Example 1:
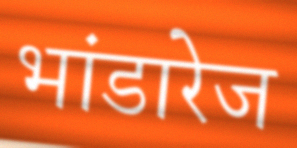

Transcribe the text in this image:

भांडारेज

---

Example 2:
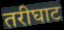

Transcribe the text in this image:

तरीघाट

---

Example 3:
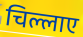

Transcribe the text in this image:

चिल्लाए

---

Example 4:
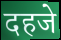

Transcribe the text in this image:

दहजे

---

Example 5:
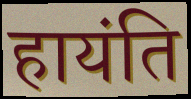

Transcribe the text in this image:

हायंति